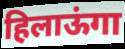
हिलाऊंगा